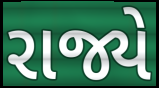
રાજ્યે